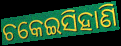
ଚକେଇସିହାଣି